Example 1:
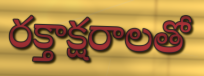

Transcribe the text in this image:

రక్తాక్షరాలతో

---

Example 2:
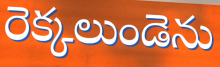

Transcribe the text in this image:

రెక్కలుండెను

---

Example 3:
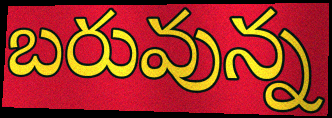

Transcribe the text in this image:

బరువున్న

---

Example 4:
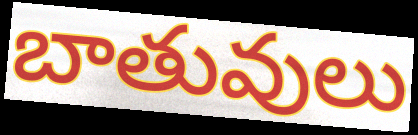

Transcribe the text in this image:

బాతువులు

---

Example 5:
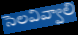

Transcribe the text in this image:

సెలవివ్వాలి